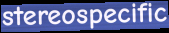
stereospecific